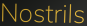
Nostrils